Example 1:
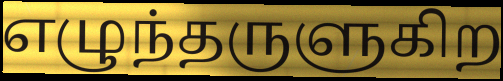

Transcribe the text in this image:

எழுந்தருளுகிற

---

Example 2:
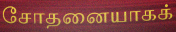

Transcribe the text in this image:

சோதனையாகக்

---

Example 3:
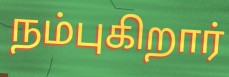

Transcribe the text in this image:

நம்புகிறார்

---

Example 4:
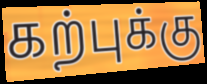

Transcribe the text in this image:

கற்புக்கு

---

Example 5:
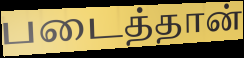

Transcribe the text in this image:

படைத்தான்